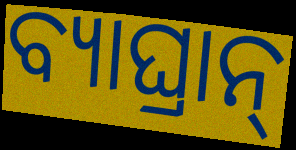
ବ୍ୟାଘ୍ରାନ୍